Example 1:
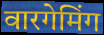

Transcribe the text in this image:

वारगेमिंग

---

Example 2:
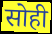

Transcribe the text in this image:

सोही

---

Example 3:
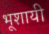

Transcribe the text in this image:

भूशायी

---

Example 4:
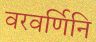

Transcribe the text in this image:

वरवर्णिनि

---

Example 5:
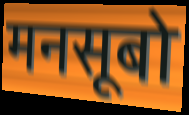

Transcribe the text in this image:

मनसूबो